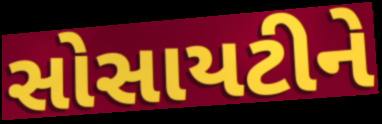
સોસાયટીને